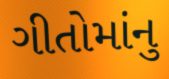
ગીતોમાંનુ